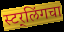
स्टर्लिंगचा